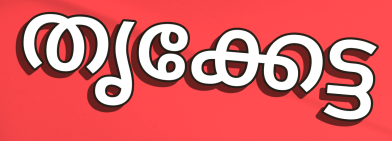
തൃക്കേട്ട